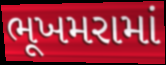
ભૂખમરામાં